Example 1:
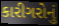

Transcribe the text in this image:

કારીગરોનું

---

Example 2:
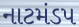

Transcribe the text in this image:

નાટમંડપ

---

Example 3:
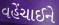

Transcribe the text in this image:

વહેંચાઈને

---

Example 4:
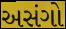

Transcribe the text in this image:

અસંગો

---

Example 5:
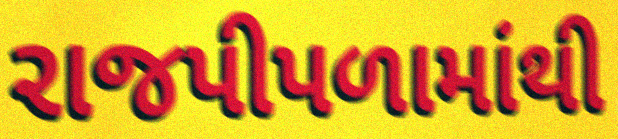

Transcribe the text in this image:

રાજપીપળામાંથી